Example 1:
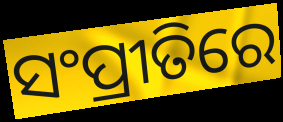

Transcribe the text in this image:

ସଂପ୍ରୀତିରେ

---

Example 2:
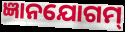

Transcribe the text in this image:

ଜ୍ଞାନଯୋଗମ୍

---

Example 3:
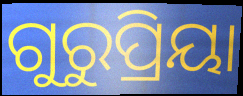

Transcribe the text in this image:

ଗୁରୁପ୍ରିୟା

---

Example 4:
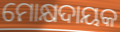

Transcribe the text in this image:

ମୋକ୍ଷଦାୟକ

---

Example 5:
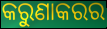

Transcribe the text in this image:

କରୁଣାକରର